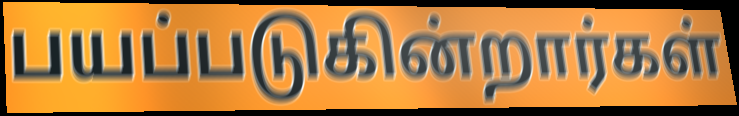
பயப்படுகின்றார்கள்